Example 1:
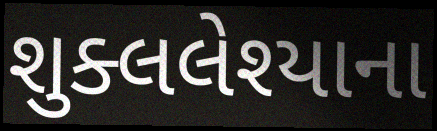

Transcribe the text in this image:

શુક્લલેશ્યાના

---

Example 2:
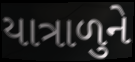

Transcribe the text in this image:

યાત્રાળુને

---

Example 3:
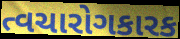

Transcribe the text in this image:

ત્વચારોગકારક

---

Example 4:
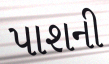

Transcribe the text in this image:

પાશની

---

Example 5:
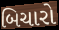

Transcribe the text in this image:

બિચારો